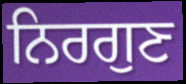
ਨਿਰਗੁਣ